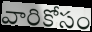
వారికోసం